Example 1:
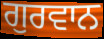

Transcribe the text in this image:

ਗੁਰਵਾਨ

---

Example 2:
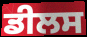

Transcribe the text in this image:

ਡੀਲਸ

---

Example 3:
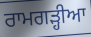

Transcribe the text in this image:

ਰਾਮਗਡ਼੍ਹੀਆ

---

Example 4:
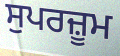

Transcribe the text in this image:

ਸੁਪਰਜ਼ੂਮ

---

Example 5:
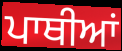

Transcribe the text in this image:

ਪਾਥੀਆਂ